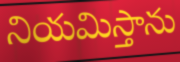
నియమిస్తాను